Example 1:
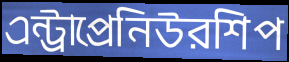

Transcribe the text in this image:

এন্ট্রাপ্রেনিউরশিপ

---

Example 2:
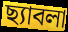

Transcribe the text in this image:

ছ্যাবলা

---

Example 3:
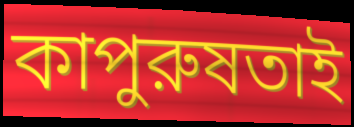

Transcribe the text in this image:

কাপুরুষতাই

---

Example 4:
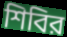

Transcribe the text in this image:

শিবির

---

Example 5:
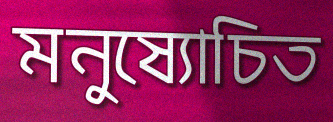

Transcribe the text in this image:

মনুষ্যোচিত